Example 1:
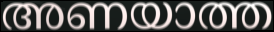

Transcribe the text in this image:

അണയാത്ത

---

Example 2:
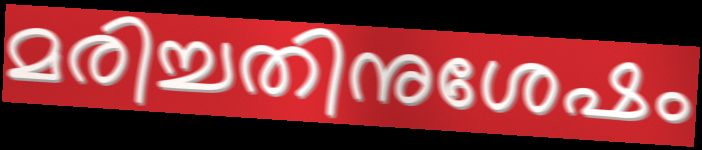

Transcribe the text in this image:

മരിച്ചതിനുശേഷം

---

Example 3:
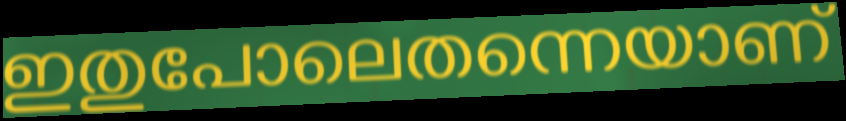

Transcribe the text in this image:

ഇതുപോലെതന്നെയാണ്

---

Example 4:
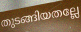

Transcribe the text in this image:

തുടങ്ങിയതല്ലേ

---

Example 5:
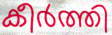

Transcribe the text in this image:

കീർത്തി